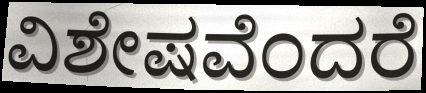
ವಿಶೇಷವೆಂದರೆ